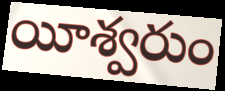
యీశ్వరుం